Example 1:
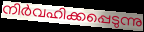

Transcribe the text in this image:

നിർവഹിക്കപ്പെടുന്നു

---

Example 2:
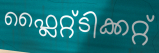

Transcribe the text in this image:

ഫ്ലൈറ്റ്ടിക്കറ്റ്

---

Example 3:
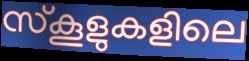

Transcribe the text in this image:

സ്കൂളുകളിലെ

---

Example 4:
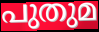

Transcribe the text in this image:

പുതുമ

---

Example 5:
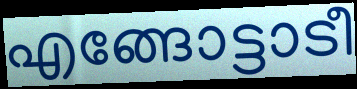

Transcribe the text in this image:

എങ്ങോട്ടാടീ